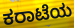
ಕರಾಟೆಯ